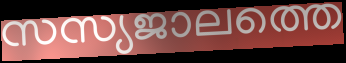
സസ്യജാലത്തെ